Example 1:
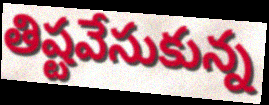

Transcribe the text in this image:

తిష్టవేసుకున్న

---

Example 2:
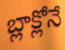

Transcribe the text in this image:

బ్లాక్లోనే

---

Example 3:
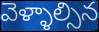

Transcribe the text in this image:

వెళ్ళాల్సిన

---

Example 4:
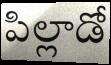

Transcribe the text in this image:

పిల్లాడో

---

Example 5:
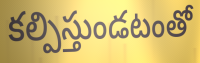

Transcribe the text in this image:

కల్పిస్తుండటంతో